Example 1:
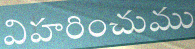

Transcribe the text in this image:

విహరించుము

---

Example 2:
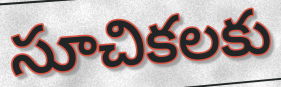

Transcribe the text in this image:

సూచికలకు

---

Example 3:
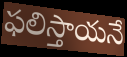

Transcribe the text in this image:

ఫలిస్తాయనే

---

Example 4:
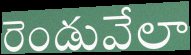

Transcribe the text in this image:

రెండువేలా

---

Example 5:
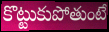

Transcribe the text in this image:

కొట్టుకుపోతుంటే